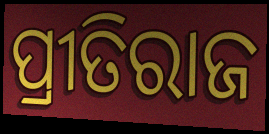
ପ୍ରୀତିରାଜ